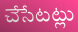
చేసేటట్లు